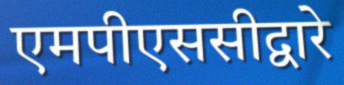
एमपीएससीद्वारे